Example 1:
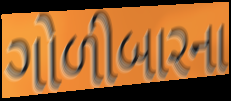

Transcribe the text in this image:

ગોળીબારના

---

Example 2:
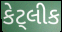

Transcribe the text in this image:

કેટ્લીક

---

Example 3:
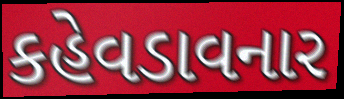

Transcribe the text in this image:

કહેવડાવનાર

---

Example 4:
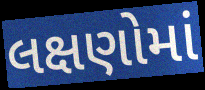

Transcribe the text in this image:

લક્ષણોમાં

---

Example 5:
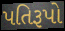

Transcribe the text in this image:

પતિરૂપો